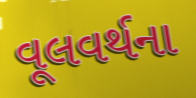
વૂલવર્થના